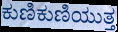
ಕುಣಿಕುಣಿಯುತ್ತ